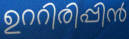
ഉററിരിപ്പിൻ